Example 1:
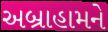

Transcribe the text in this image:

અબ્રાહામને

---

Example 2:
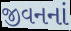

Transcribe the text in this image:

જીવનનાં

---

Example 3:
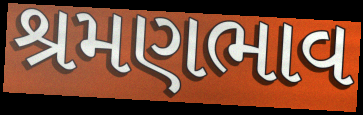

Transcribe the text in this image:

શ્રમણભાવ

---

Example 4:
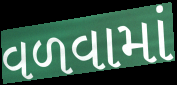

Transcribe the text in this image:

વળવામાં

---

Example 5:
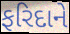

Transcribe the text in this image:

ફરિદાને